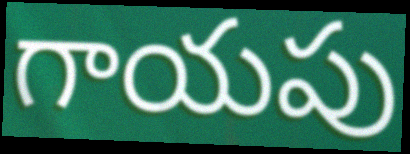
గాయపు